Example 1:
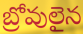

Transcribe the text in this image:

బ్రోవులైన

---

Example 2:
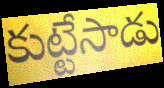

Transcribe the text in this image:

కుట్టేసాడు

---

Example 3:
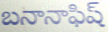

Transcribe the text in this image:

బనానాఫిష్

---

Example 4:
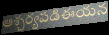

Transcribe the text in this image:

ఆశ్చర్యపడిఈయన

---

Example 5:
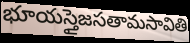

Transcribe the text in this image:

భూయస్తైజసతామసావితి